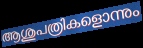
ആശുപത്രികളൊന്നും